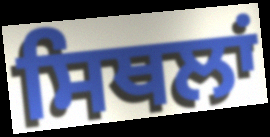
ਸਿਥਲਾਂ